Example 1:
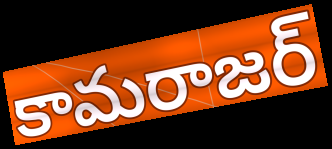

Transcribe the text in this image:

కామరాజర్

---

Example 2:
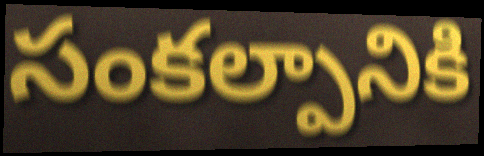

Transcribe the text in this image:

సంకల్పానికి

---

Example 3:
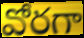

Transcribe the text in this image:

వోరగా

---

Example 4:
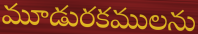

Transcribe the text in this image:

మూడురకములను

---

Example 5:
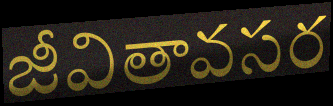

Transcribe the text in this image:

జీవితావసర